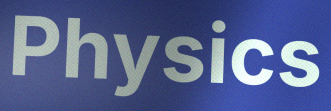
Physics